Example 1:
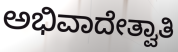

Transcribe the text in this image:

ಅಭಿವಾದೇತ್ವಾತಿ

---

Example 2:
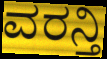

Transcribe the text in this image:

ವರನ್ತಿ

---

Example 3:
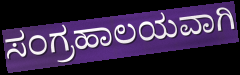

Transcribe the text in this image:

ಸಂಗ್ರಹಾಲಯವಾಗಿ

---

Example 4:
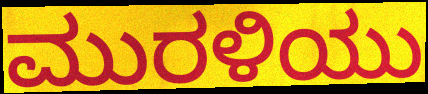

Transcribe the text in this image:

ಮುರಳಿಯು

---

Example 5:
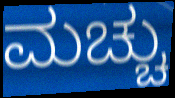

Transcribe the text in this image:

ಮಚ್ಚು